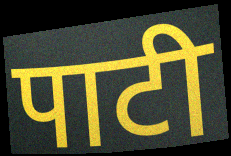
पाटी